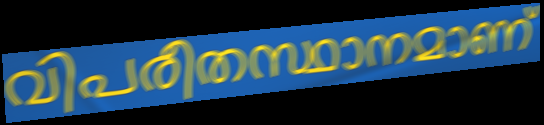
വിപരീതസ്ഥാനമാണ്